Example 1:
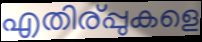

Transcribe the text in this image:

എതിര്പ്പുകളെ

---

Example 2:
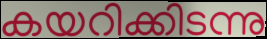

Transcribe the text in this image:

കയറിക്കിടന്നു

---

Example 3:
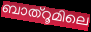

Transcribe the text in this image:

ബാത്റൂമിലെ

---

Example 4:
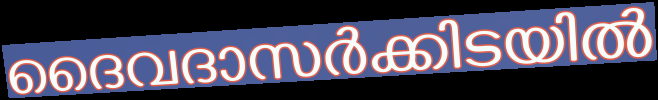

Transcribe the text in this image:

ദൈവദാസർക്കിടയിൽ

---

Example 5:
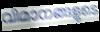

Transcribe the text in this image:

വിമാനങ്ങളുടെ